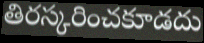
తిరస్కరించకూడదు